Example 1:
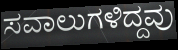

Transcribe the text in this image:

ಸವಾಲುಗಳಿದ್ದವು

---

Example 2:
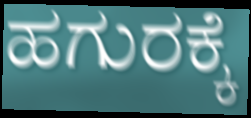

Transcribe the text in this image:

ಹಗುರಕ್ಕೆ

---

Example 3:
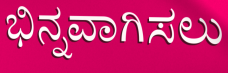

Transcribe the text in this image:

ಭಿನ್ನವಾಗಿಸಲು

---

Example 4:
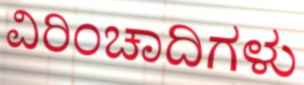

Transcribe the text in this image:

ವಿರಿಂಚಾದಿಗಳು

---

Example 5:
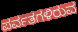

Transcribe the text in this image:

ಪರ್ವತಗಳಿರುವ